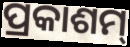
ପ୍ରକାଶମ୍